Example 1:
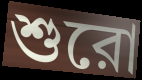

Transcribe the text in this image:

শুরো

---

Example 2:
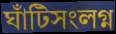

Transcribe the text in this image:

ঘাঁটিসংলগ্ন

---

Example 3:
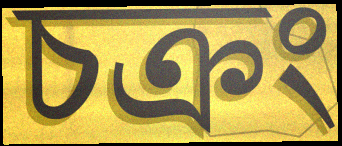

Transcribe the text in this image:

চক্রং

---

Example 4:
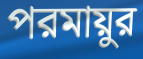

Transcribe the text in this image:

পরমায়ুর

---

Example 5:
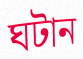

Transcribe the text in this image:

ঘটান